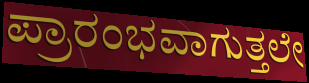
ಪ್ರಾರಂಭವಾಗುತ್ತಲೇ